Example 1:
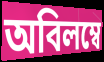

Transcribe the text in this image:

অবিলম্বে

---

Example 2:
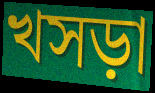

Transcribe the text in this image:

খসড়া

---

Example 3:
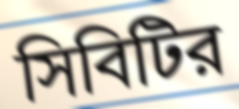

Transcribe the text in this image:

সিবিটির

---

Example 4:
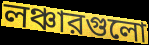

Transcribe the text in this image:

লঞ্চারগুলো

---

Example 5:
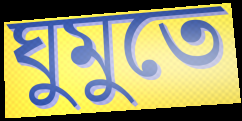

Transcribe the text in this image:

ঘুমুতে